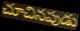
చూచినపుడు